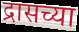
द्रासच्या